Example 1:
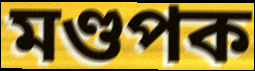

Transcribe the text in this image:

মণ্ডপক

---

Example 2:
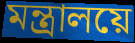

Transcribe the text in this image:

মন্ত্ৰালয়ে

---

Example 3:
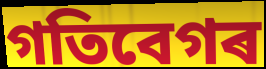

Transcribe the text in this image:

গতিবেগৰ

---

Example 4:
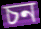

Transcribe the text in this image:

চন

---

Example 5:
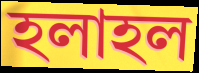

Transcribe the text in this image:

হলাহল